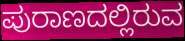
ಪುರಾಣದಲ್ಲಿರುವ